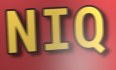
NIQ